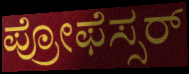
ಪ್ರೋಫೆಸ್ಸರ್